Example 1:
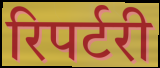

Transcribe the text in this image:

रिपर्टरी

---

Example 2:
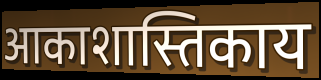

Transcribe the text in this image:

आकाशास्तिकाय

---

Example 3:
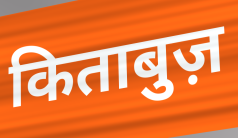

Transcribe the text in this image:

किताबुज़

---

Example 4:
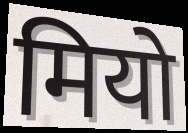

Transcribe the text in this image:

मियो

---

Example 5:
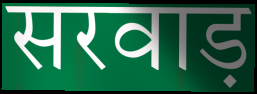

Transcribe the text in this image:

सरवाड़